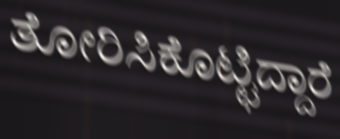
ತೋರಿಸಿಕೊಟ್ಟಿದ್ದಾರೆ